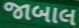
જાબાલ